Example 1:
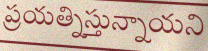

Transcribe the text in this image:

ప్రయత్నిస్తున్నాయని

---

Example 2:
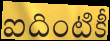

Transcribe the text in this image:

ఐదింటికీ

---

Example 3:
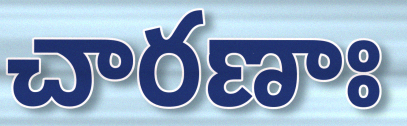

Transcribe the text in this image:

చారణాః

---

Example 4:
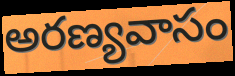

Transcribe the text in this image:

అరణ్యవాసం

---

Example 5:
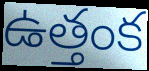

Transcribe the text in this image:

ఉత్తంక